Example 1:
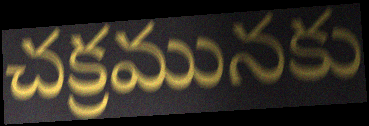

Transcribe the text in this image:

చక్రమునకు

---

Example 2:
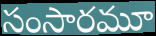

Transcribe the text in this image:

సంసారమూ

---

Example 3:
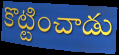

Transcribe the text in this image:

కొట్టించాడు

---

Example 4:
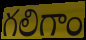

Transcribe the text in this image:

గలిగాం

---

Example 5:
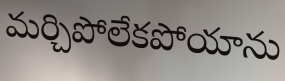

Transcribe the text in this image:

మర్చిపోలేకపోయాను